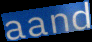
aand